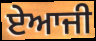
ਏਆਜੀ